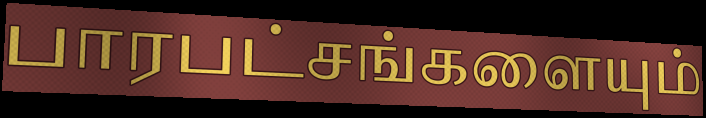
பாரபட்சங்களையும்